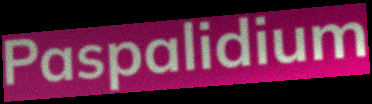
Paspalidium